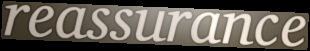
reassurance